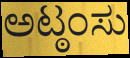
ಅಟ್ಠಂಸು